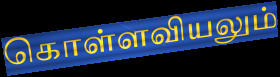
கொள்ளவியலும்